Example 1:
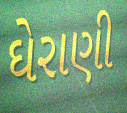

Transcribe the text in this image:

ઘેરાણી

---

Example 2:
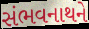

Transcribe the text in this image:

સંભવનાથને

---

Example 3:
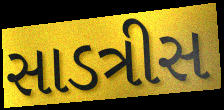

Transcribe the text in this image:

સાડત્રીસ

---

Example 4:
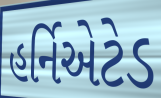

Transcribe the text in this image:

હર્નિએટેડ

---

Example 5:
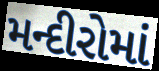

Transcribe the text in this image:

મન્દીરોમાં